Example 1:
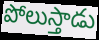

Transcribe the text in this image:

పోలుస్తాడు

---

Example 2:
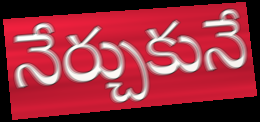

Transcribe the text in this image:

నేర్చుకునే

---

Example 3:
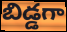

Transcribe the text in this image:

బిడ్డగా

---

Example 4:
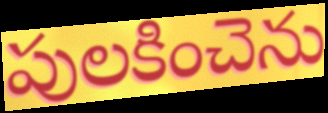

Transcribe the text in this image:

పులకించెను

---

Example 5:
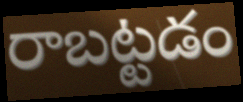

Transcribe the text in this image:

రాబట్టడం